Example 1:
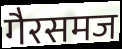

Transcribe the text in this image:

गैरसमज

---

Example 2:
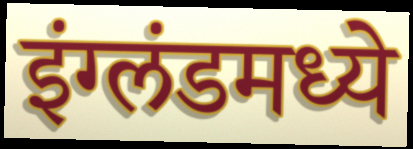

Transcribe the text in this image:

इंग्लंडमध्ये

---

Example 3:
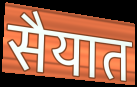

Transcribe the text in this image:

सैयात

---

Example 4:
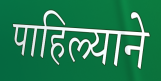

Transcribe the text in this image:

पाहिल्याने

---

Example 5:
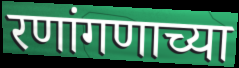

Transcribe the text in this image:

रणांगणाच्या